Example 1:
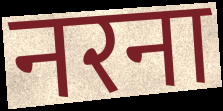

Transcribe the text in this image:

नरना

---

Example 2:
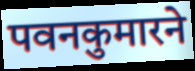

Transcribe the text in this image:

पवनकुमारने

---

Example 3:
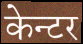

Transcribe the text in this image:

केन्टर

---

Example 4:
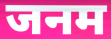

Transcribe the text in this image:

जनम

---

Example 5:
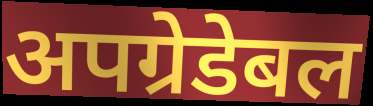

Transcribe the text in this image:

अपग्रेडेबल